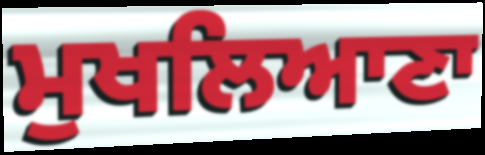
ਮੁਖਲਿਆਣਾ